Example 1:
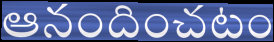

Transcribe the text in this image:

ఆనందించటం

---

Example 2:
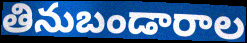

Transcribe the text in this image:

తినుబండారాల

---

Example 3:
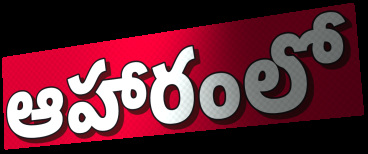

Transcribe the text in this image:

ఆహారంలో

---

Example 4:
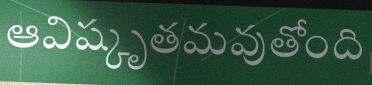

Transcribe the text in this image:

ఆవిష్కృతమవుతోంది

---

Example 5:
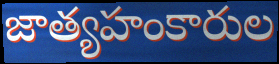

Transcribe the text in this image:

జాత్యహంకారుల